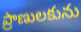
ప్రాణులకును